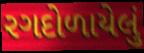
રગદોળાયેલું